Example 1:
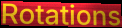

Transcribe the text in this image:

Rotations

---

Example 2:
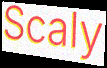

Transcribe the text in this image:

Scaly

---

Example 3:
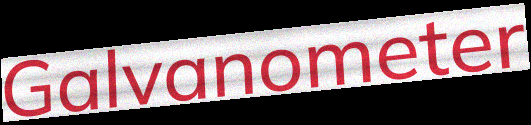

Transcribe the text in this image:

Galvanometer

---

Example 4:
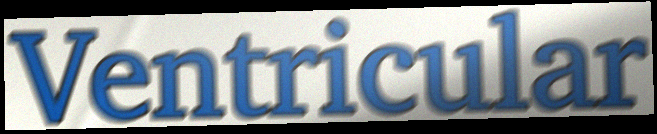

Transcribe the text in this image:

Ventricular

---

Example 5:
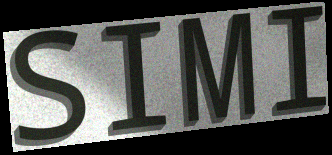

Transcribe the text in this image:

SIMI